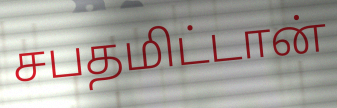
சபதமிட்டான்